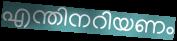
എന്തിനറിയണം